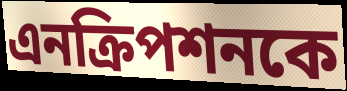
এনক্রিপশনকে